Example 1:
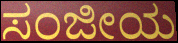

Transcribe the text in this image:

ಸಂಜೀಯ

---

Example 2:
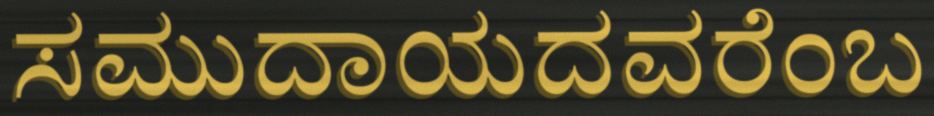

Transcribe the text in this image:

ಸಮುದಾಯದವರೆಂಬ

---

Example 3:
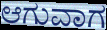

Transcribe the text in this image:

ಆಗುವಾಗ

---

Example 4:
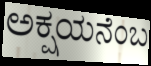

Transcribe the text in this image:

ಅಕ್ಷಯನೆಂಬ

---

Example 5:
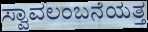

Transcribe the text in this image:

ಸ್ವಾವಲಂಬನೆಯತ್ತ